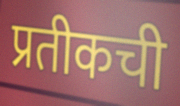
प्रतीकची